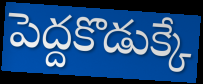
పెద్దకొడుక్కే